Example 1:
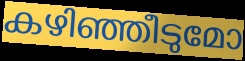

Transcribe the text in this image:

കഴിഞ്ഞീടുമോ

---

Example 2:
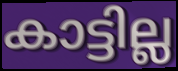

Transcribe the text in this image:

കാട്ടില്ല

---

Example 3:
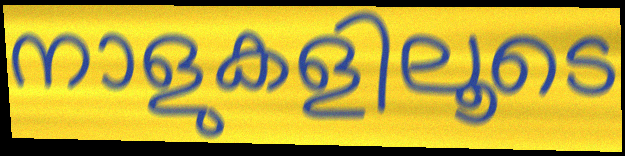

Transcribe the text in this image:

നാളുകളിലൂടെ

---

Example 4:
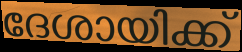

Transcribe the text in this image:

ദേശായിക്ക്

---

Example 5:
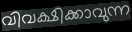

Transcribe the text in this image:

വിവക്ഷിക്കാവുന്ന